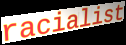
racialist